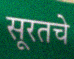
सूरतचे